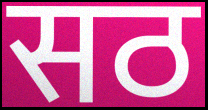
सठ